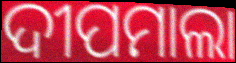
ଦୀପମାଲା